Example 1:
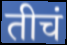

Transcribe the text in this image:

तीचं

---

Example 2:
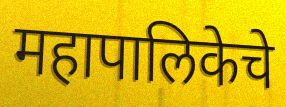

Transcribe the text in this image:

महापालिकेचे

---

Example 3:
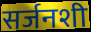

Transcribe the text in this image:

सर्जनशी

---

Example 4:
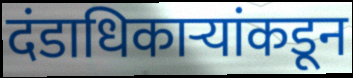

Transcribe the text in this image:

दंडाधिकाऱ्यांकडून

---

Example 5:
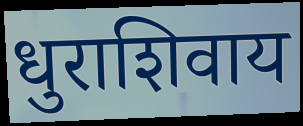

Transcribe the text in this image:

धुराशिवाय